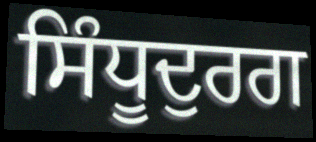
ਸਿੰਧੂਦੁਰਗ